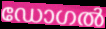
ഡോഗൽ